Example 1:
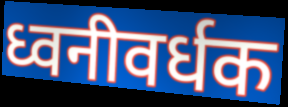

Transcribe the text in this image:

ध्वनीवर्धक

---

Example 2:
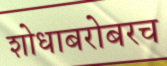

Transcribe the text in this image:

शोधाबरोबरच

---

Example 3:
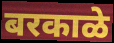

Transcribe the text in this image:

बरकाळे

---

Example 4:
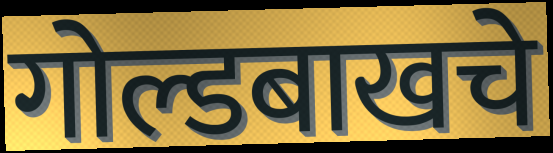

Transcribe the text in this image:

गोल्डबाखचे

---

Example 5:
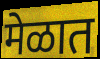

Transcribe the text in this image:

मेळात